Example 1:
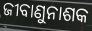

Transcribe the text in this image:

ଜୀବାଣୁନାଶକ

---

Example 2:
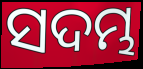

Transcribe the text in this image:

ସଦମ୍ଭ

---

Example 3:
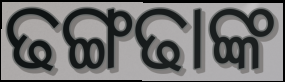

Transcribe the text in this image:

ଢଙ୍ଗଢାଙ୍କ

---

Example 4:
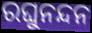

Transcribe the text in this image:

ରଘୁନନ୍ଦନ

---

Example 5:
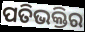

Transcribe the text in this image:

ପତିଭକ୍ତିର